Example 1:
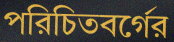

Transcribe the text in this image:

পরিচিতবর্গের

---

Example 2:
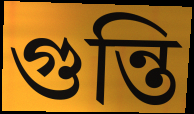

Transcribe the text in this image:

গুন্তি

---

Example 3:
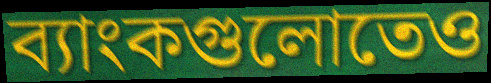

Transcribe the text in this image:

ব্যাংকগুলোতেও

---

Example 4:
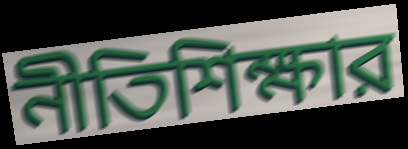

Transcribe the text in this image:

নীতিশিক্ষার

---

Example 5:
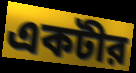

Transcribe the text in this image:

একটীর